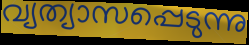
വ്യത്യാസപ്പെടുന്നു